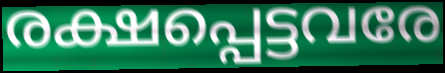
രക്ഷപ്പെട്ടവരേ